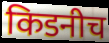
किडनीच